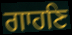
ਗਾਹਣਿ